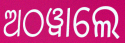
ଅଠୱାଲେ